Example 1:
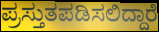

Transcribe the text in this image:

ಪ್ರಸ್ತುತಪಡಿಸಲಿದ್ದಾರೆ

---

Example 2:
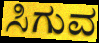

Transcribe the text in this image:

ಸಿಗುವ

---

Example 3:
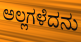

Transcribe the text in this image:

ಅಲ್ಲಗಳೆದನು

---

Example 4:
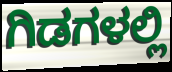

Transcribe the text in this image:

ಗಿಡಗಳಲ್ಲಿ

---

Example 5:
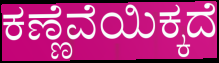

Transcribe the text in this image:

ಕಣ್ಣೆವೆಯಿಕ್ಕದೆ